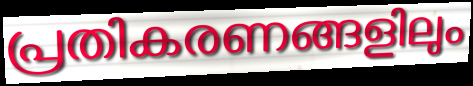
പ്രതികരണങ്ങളിലും